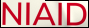
NIAID